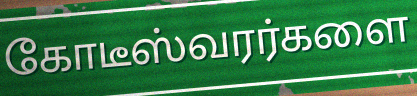
கோடீஸ்வரர்களை